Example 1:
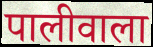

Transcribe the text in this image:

पालीवाला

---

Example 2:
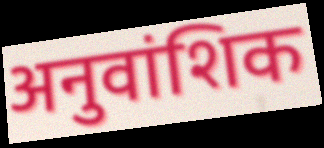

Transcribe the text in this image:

अनुवांशिक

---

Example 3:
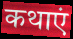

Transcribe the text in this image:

कथाएं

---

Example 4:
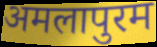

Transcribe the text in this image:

अमलापुरम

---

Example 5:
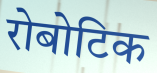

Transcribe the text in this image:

रोबोटिक